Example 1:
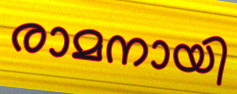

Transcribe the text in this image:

രാമനായി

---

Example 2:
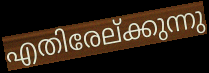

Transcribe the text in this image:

എതിരേല്ക്കുന്നു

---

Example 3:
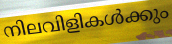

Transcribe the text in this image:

നിലവിളികൾക്കും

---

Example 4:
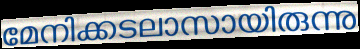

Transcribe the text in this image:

മേനിക്കടലാസായിരുന്നു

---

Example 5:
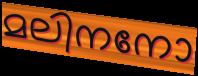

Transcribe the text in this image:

മലിനനോ